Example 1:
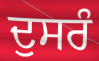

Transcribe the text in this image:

ਦੁਸਰੰ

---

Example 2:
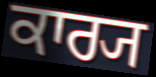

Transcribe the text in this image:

ਕਾਰ੍ਯ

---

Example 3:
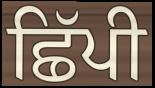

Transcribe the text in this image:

ਛਿੱਪੀ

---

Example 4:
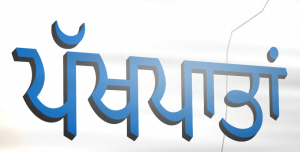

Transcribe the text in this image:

ਪੱਖਪਾਤਾਂ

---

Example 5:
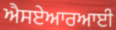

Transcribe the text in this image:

ਐਸਏਆਰਆਈ